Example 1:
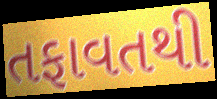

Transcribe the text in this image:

તફાવતથી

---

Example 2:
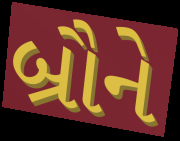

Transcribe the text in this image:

બ્રૌને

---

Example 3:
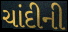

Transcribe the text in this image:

ચાંદીની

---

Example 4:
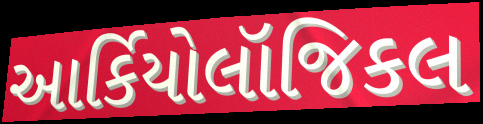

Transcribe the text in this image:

આર્કિયોલૉજિકલ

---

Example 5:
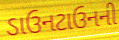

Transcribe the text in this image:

ડાઉનટાઉનની